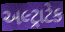
અલ્ટ્રાટેક